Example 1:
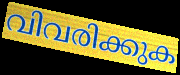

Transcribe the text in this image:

വിവരിക്കുക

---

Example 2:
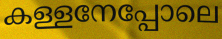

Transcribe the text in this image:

കള്ളനേപ്പോലെ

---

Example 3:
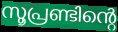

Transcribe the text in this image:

സൂപ്രണ്ടിന്റെ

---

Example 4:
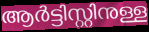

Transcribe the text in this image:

ആർട്ടിസ്റ്റിനുള്ള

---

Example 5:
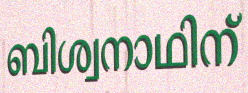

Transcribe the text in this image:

ബിശ്വനാഥിന്